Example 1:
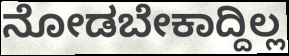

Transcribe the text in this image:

ನೋಡಬೇಕಾದ್ದಿಲ್ಲ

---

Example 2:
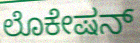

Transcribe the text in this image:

ಲೊಕೇಷನ್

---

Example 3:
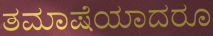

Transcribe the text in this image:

ತಮಾಷೆಯಾದರೂ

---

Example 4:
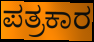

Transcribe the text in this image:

ಪತ್ರಕಾರ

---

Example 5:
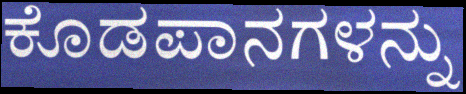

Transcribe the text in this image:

ಕೊಡಪಾನಗಳನ್ನು